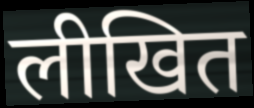
लीखित